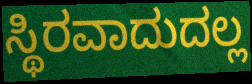
ಸ್ಥಿರವಾದುದಲ್ಲ